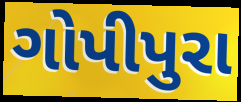
ગોપીપુરા